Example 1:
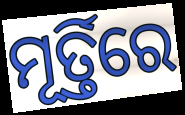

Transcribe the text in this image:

ମୂର୍ତ୍ତିରେ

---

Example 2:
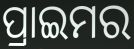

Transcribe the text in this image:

ପ୍ରାଇମର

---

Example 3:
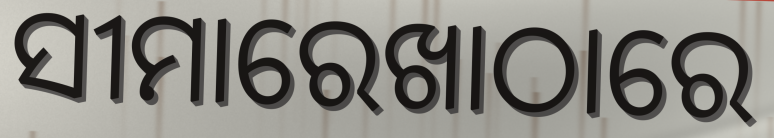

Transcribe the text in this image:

ସୀମାରେଖାଠାରେ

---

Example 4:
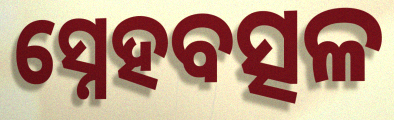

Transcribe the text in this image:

ସ୍ନେହବତ୍ସଳ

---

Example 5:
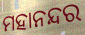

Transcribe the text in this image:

ମହାନନ୍ଦର